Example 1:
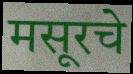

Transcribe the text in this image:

मसूरचे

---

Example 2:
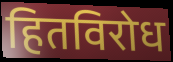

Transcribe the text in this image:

हितविरोध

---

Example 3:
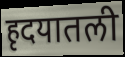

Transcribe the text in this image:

हृदयातली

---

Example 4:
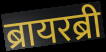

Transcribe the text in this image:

ब्रायरब्री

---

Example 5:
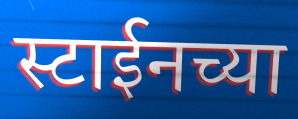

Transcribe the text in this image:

स्टाईनच्या